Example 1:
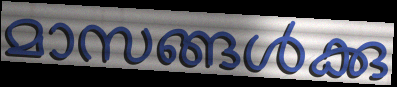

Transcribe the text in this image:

മാസങ്ങൾക്കു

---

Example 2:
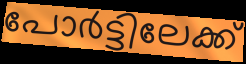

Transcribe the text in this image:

പോർട്ടിലേക്ക്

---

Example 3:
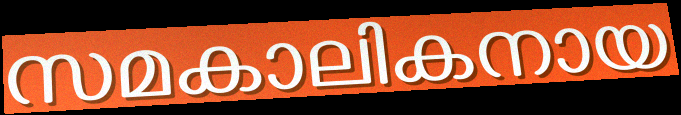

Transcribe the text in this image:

സമകാലികനായ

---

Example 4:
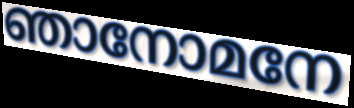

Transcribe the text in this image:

ഞാനോമനേ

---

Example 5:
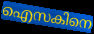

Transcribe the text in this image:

ഐസകിനെ